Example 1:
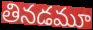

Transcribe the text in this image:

తినడమూ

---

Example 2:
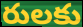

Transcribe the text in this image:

రులకు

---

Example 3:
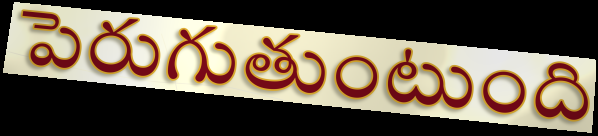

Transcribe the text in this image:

పెరుగుతుంటుంది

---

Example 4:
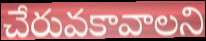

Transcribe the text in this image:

చేరువకావాలని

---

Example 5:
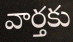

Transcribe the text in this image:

వార్తకు